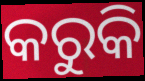
କରୁକି